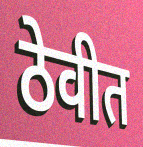
ठेवीत